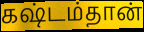
கஷ்டம்தான்